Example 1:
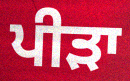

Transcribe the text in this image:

ਪੀੜਾ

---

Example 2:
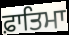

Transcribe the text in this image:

ਫ਼ਾਤਿਮਾ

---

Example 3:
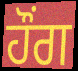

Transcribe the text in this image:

ਹੌਂਗ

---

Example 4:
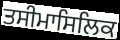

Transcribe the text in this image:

ਤਸੀਮਾਸਿਲਿਕ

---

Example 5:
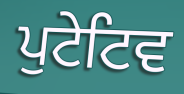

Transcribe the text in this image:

ਪੁਟੇਟਿਵ